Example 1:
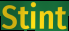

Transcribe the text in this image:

Stint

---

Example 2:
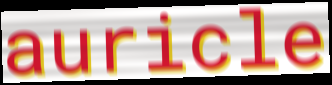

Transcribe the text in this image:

auricle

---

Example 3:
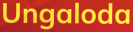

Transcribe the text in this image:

Ungaloda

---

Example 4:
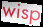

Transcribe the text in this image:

wisp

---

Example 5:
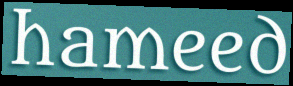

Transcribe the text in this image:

hameed